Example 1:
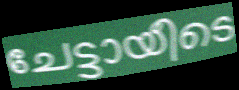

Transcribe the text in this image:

ചേട്ടായീടെ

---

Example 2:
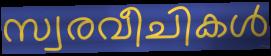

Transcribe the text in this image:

സ്വരവീചികൾ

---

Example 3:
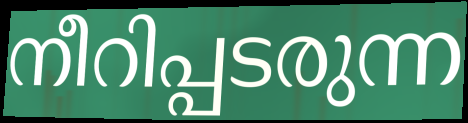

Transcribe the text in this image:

നീറിപ്പടരുന്ന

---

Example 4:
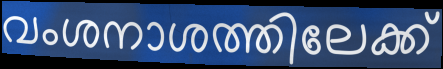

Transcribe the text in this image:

വംശനാശത്തിലേക്ക്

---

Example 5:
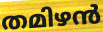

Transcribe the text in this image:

തമിഴൻ